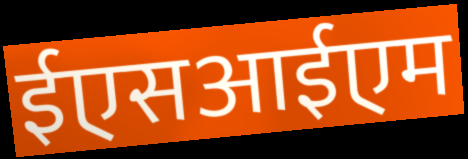
ईएसआईएम